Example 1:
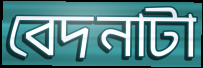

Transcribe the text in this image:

বেদনাটা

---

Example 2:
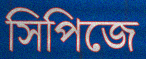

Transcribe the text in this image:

সিপিজে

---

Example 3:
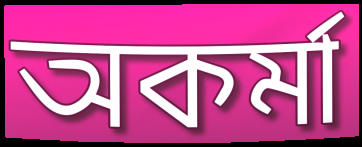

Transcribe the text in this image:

অকর্মা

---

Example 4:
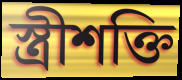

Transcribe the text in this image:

স্ত্রীশক্তি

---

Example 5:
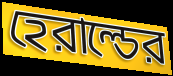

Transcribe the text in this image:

হেরাল্ডের